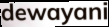
dewayani